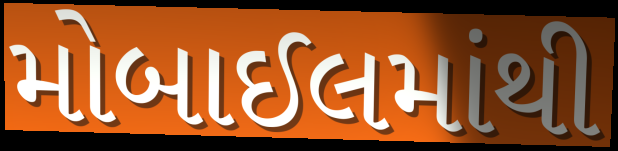
મોબાઈલમાંથી